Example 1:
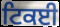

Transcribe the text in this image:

ਟਿਕਈ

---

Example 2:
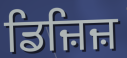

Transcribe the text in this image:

ਡਿਜ਼ਿਜ਼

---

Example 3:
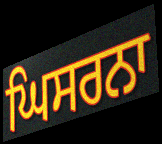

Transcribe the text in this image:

ਘਿਸਰਨਾ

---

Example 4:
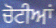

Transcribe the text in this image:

ਚੋਟੀਆਂ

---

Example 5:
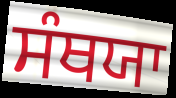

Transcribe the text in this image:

ਸੰਥਯਾ